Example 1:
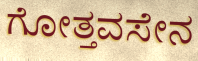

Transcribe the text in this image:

ಗೋತ್ತವಸೇನ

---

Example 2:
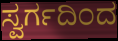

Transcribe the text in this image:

ಸ್ವರ್ಗದಿಂದ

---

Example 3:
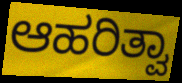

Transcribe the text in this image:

ಆಹರಿತ್ವಾ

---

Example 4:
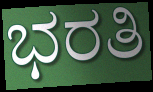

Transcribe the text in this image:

ಭರತಿ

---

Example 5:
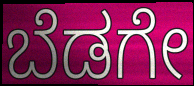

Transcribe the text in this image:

ಬೆಡಗೇ